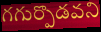
గగుర్పొడవని